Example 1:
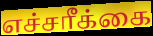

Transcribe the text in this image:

எச்சரீக்கை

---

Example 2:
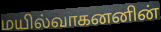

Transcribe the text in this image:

மயில்வாகனனின்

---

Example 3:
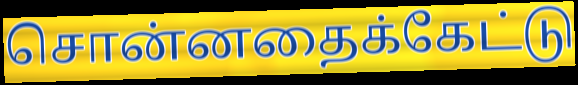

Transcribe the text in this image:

சொன்னதைக்கேட்டு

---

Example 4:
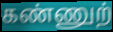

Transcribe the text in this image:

கண்ணுற்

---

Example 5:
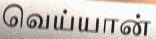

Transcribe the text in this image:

வெய்யான்